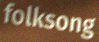
folksong